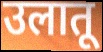
उलातू